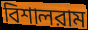
বিশালরাম